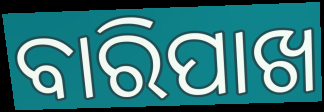
ବାରିପାଖ